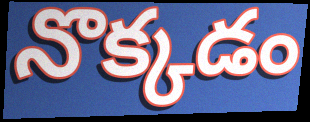
నొక్కడం